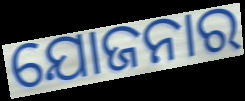
ଯୋଜନାର